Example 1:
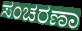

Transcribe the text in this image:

ಸಂಚರಣಾ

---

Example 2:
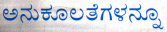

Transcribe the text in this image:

ಅನುಕೂಲತೆಗಳನ್ನೂ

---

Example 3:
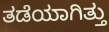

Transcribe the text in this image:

ತಡೆಯಾಗಿತ್ತು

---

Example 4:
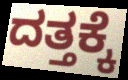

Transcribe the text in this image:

ದತ್ತಕ್ಕೆ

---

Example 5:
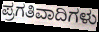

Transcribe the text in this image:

ಪ್ರಗತಿವಾದಿಗಳು